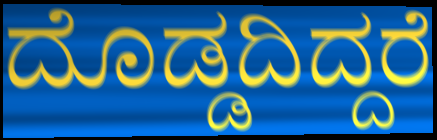
ದೊಡ್ಡದಿದ್ದರೆ